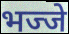
भज्जे